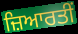
ਜ਼ਿਆਰਤੀਂ